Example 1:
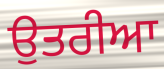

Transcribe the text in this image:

ਉਤਰੀਆ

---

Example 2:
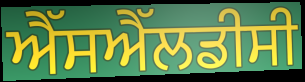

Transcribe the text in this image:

ਐੱਸਐੱਲਡੀਸੀ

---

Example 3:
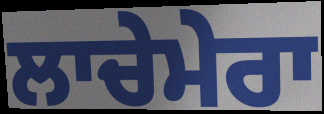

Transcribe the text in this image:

ਲਾਚੇਮੇਰਾ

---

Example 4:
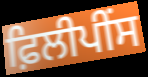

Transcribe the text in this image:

ਫ਼ਿਲੀਪੀਂਸ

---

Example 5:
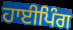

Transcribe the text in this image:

ਹਾਈਪਿੰਗ